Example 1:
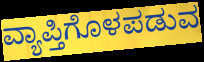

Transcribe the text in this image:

ವ್ಯಾಪ್ತಿಗೊಳಪಡುವ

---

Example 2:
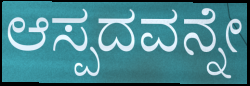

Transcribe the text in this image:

ಆಸ್ಪದವನ್ನೇ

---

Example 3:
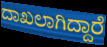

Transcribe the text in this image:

ದಾಖಲಾಗಿದ್ದಾರೆ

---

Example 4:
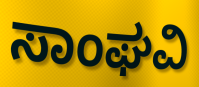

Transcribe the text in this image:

ಸಾಂಘವಿ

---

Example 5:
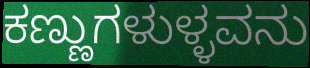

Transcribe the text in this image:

ಕಣ್ಣುಗಳುಳ್ಳವನು